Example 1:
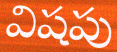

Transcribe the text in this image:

విషపు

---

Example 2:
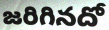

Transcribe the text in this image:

జరిగినదో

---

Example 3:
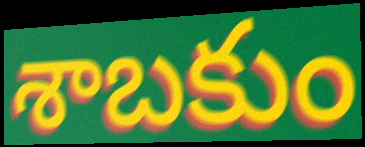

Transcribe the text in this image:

శాబకుం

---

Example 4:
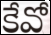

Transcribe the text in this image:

కేవో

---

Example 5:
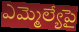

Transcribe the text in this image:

ఎమ్మెల్యేపై